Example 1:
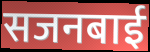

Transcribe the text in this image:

सजनबाई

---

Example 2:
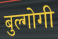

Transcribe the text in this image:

बुल्गोगी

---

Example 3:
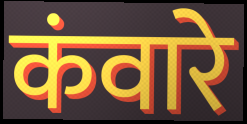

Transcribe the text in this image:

कंवारे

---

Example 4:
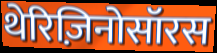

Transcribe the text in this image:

थेरिज़िनोसॉरस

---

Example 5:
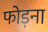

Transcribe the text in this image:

फोड़ना